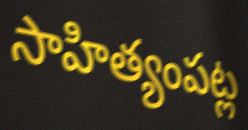
సాహిత్యంపట్ల